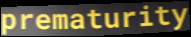
prematurity